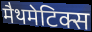
मैथमेटिक्स